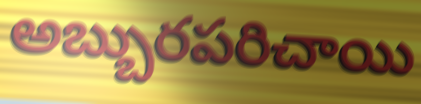
అబ్బురపరిచాయి